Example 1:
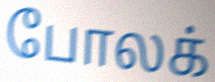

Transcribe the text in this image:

போலக்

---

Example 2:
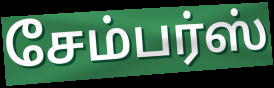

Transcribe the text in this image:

சேம்பர்ஸ்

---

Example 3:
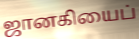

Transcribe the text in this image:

ஜானகியைப்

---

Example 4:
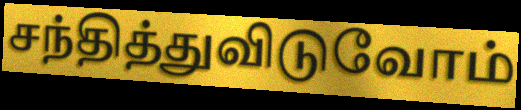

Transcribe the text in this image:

சந்தித்துவிடுவோம்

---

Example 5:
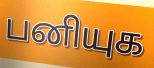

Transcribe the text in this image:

பனியுக